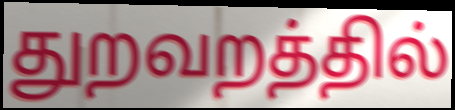
துறவறத்தில்